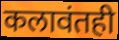
कलावंतही